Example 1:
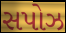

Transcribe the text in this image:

સપોઝ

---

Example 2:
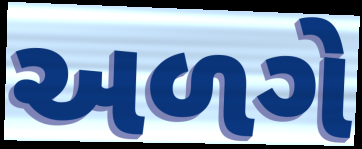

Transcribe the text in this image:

અળગે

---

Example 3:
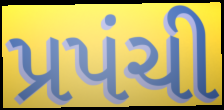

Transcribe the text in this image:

પ્રપંચી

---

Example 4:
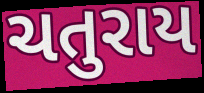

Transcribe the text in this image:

ચતુરાય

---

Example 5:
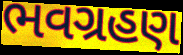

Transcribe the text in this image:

ભવગ્રહણ